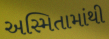
અસ્મિતામાંથી